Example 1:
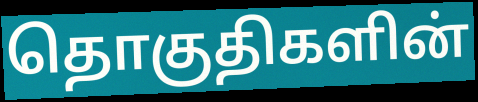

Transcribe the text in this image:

தொகுதிகளின்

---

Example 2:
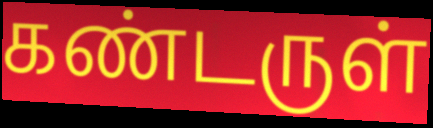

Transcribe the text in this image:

கண்டருள்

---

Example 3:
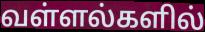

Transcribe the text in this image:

வள்ளல்களில்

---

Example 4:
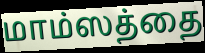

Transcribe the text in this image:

மாம்ஸத்தை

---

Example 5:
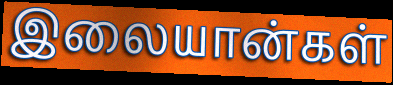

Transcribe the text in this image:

இலையான்கள்